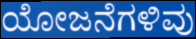
ಯೋಜನೆಗಳಿವು